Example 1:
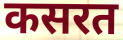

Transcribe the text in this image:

कसरत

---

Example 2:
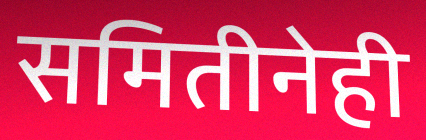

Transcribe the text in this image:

समितीनेही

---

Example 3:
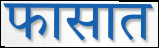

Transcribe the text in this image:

फासात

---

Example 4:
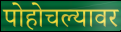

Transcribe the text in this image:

पोहोचल्यावर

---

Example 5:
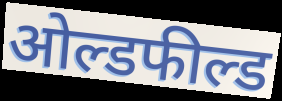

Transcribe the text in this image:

ओल्डफील्ड